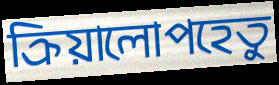
ক্রিয়ালোপহেতু